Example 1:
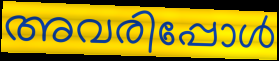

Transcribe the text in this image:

അവരിപ്പോൾ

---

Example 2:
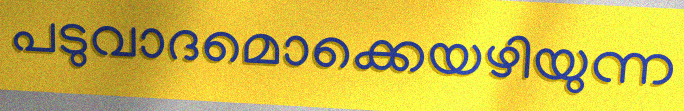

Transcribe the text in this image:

പടുവാദമൊക്കെയഴിയുന്ന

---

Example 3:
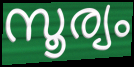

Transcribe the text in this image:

സൂര്യം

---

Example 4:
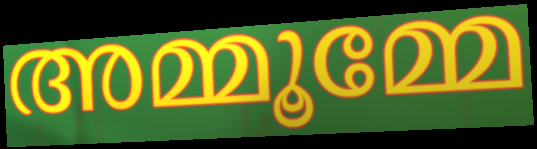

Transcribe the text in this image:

അമ്മൂമ്മേ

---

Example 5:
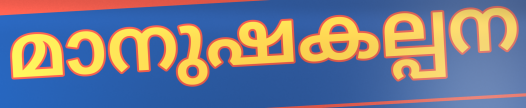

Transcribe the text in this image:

മാനുഷകല്പന